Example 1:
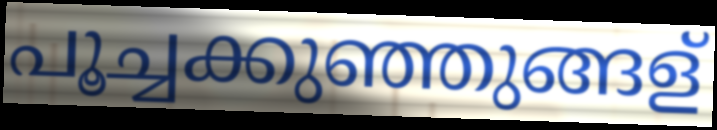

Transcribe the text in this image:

പൂച്ചക്കുഞ്ഞുങ്ങള്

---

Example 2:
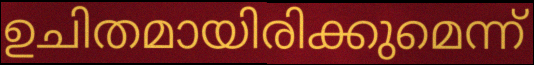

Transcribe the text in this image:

ഉചിതമായിരിക്കുമെന്ന്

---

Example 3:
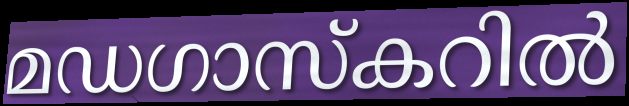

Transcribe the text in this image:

മഡഗാസ്കറിൽ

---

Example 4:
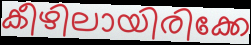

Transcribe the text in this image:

കീഴിലായിരിക്കേ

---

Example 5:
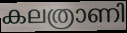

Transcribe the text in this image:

കലത്രാണി